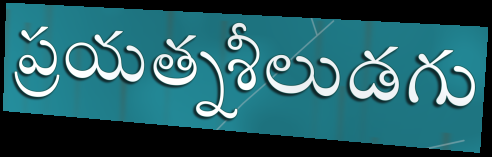
ప్రయత్నశీలుడగు